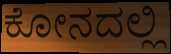
ಕೋನದಲ್ಲಿ